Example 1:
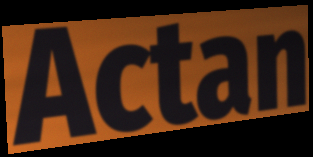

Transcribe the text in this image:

Actan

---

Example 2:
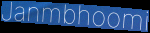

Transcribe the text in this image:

Janmbhoomi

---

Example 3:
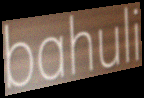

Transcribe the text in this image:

bahuli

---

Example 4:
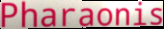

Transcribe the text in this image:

Pharaonis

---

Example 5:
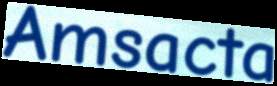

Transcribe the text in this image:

Amsacta